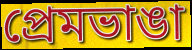
প্রেমভাঙা